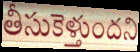
తీసుకెళ్తుందని